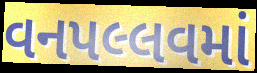
વનપલ્લવમાં